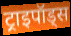
ट्राइपॉड्स